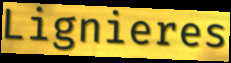
Lignieres